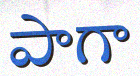
పాగా